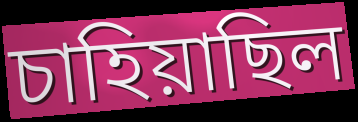
চাহিয়াছিল